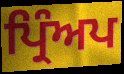
ਪ੍ਰਿੰਅਪ